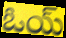
ఓయ్